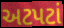
અટપટાં